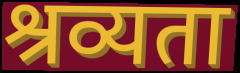
श्रव्यता